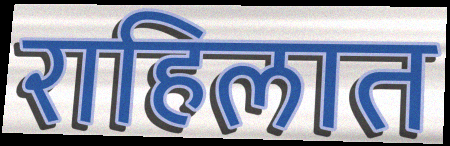
राहिलात